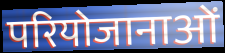
परियोजानाओं